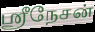
ஸ்ரீநேசன்